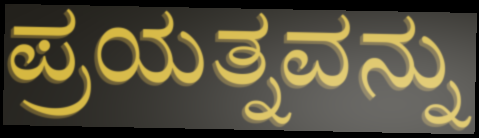
ಪ್ರಯತ್ನವನ್ನು